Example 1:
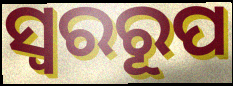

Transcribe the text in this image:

ସ୍ୱରରୂପ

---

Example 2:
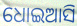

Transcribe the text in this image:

ଧୋଇଆସି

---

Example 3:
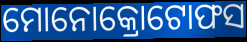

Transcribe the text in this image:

ମୋନୋକ୍ରୋଟୋଫସ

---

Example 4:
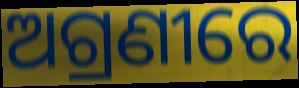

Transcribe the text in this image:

ଅଗ୍ରଣୀରେ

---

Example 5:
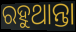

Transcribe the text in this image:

ରହୁଥାନ୍ତା